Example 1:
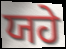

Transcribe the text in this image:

ਯਹੇ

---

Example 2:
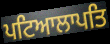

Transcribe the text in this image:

ਪਟਿਆਲਾਪਤਿ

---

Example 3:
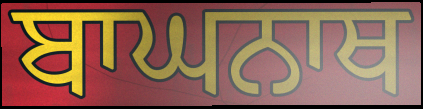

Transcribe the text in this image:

ਬਾਘਨਾਥ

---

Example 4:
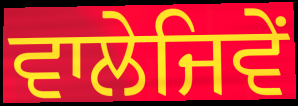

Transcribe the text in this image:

ਵਾਲੇਜਿਵੇਂ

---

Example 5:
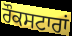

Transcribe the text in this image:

ਰੌਕਸਟਾਰਾਂ